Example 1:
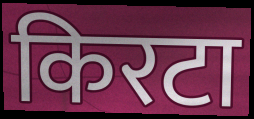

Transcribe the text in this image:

किरटा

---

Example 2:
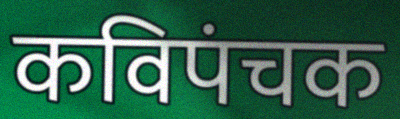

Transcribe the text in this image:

कविपंचक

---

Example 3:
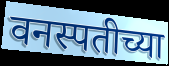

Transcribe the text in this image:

वनस्पतीच्या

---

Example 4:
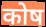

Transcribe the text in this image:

कोष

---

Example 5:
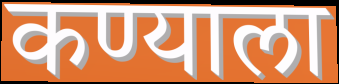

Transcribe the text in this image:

कण्याला